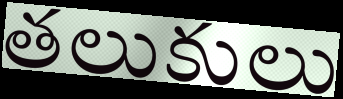
తలుకులు